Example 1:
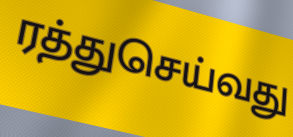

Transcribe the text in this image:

ரத்துசெய்வது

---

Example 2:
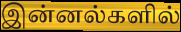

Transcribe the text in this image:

இன்னல்களில்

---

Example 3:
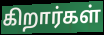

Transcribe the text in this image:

கிறார்கள்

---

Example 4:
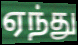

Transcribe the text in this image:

ஏந்து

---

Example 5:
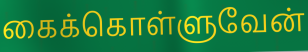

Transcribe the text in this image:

கைக்கொள்ளுவேன்